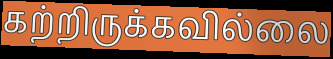
கற்றிருக்கவில்லை